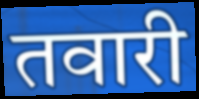
तवारी